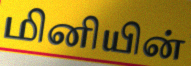
மினியின்